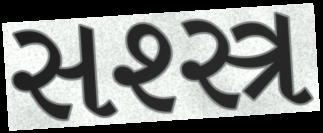
સશ્સ્ત્ર